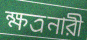
ক্ষত্রনারী